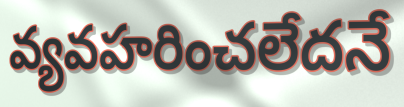
వ్యవహరించలేదనే